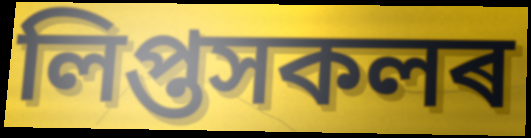
লিপ্তসকলৰ